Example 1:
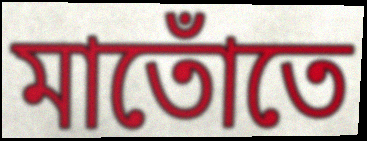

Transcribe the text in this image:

মাতোঁতে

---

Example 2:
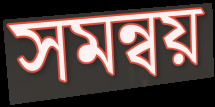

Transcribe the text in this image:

সমন্বয়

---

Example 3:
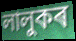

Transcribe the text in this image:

লালুকৰ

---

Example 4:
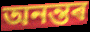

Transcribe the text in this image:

অনন্তৰ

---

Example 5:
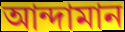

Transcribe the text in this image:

আন্দামান